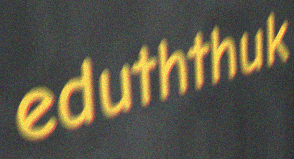
eduththuk